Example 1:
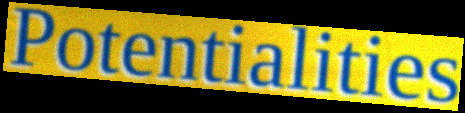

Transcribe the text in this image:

Potentialities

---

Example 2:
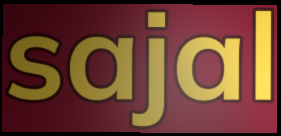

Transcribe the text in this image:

sajal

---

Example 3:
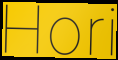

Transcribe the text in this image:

Hori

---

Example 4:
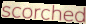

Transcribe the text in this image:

scorched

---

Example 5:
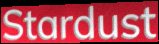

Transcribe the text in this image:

Stardust